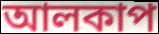
আলকাপ